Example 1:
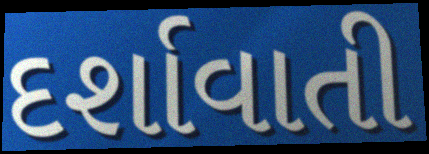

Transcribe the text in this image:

દર્શાવાતી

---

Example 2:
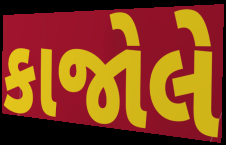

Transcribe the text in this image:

કાજોલે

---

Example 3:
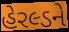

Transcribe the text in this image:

હેરલ્ડને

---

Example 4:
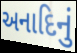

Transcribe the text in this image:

અનાદિનું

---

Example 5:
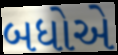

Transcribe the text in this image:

બધોએ